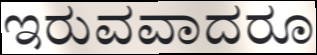
ಇರುವವಾದರೂ